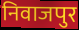
निवाजपुर